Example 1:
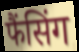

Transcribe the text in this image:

फैंसिंग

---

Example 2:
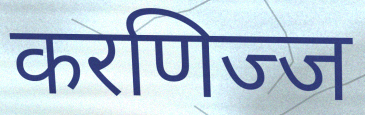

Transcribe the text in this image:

करणिज्ज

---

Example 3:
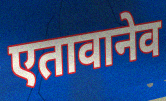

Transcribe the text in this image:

एतावानेव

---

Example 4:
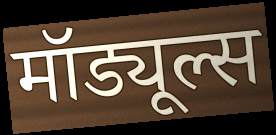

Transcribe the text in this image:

मॉड्यूल्स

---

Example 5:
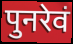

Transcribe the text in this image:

पुनरेवं